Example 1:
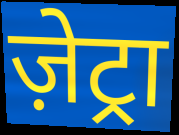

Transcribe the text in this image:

ज़ेट्रा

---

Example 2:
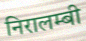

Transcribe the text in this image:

निरालम्बी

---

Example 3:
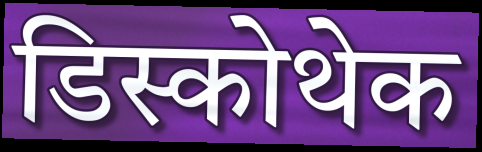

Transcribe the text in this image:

डिस्कोथेक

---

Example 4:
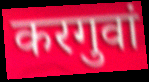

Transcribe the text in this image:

करगुवां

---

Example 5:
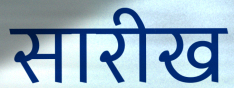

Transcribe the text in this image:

सारीख